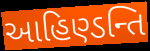
આહિણ્ડન્તિ